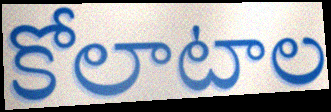
కోలాటాల